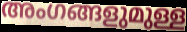
അംഗങ്ങളുമുള്ള